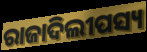
ରାଜାଦିଲୀପସ୍ୟ